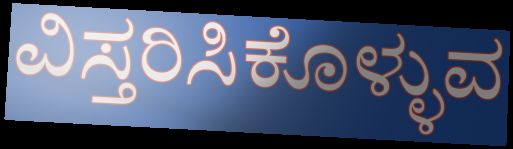
ವಿಸ್ತರಿಸಿಕೊಳ್ಳುವ